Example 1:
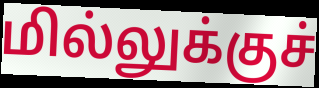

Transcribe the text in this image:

மில்லுக்குச்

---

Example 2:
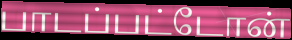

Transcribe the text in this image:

பாடப்பட்டோன்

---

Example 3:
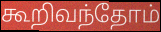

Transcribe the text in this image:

கூறிவந்தோம்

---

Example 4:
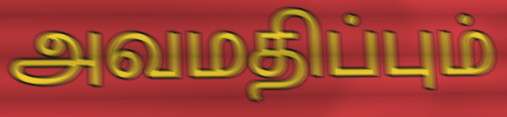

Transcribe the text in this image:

அவமதிப்பும்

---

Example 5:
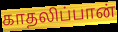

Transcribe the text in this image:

காதலிப்பான்